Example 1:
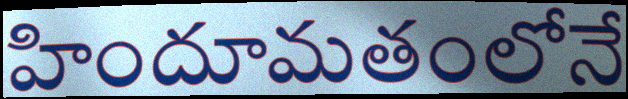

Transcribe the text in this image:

హిందూమతంలోనే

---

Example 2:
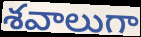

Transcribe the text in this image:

శవాలుగా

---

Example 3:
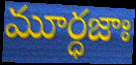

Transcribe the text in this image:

మూర్ధజాః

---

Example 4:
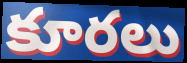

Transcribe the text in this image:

కూరలు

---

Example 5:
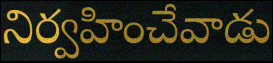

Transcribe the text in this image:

నిర్వహించేవాడు